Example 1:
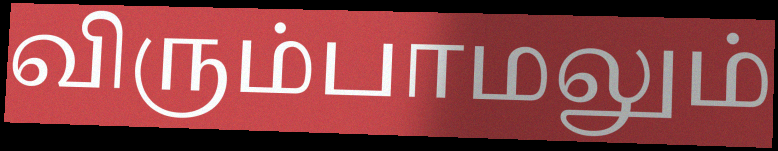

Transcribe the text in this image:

விரும்பாமலும்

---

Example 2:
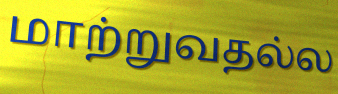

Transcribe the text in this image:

மாற்றுவதல்ல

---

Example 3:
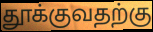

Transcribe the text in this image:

தூக்குவதற்கு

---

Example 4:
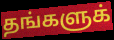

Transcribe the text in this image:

தங்களுக்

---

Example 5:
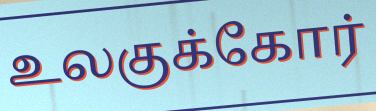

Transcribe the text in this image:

உலகுக்கோர்